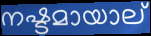
നഷ്ടമായാല്